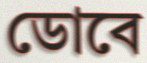
ডোবে